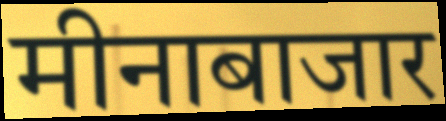
मीनाबाजार